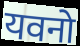
यवनो